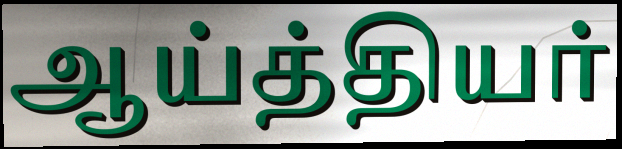
ஆய்த்தியர்